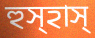
হুস্‌হাস্